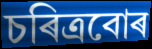
চৰিত্ৰবোৰ